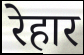
रेहार